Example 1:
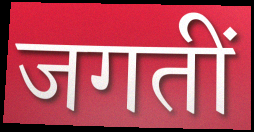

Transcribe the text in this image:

जगतीं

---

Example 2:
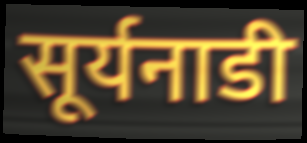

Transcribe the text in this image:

सूर्यनाडी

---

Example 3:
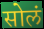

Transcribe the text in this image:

सोलं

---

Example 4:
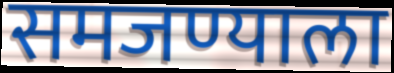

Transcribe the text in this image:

समजण्याला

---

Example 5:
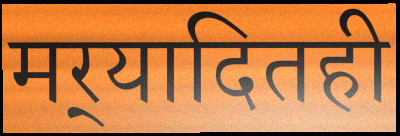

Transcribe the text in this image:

मर्यादितही